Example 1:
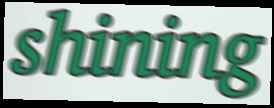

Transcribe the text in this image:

shining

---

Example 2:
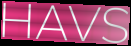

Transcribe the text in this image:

HAVS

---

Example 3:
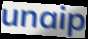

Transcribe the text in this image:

unaip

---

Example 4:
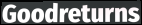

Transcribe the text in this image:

Goodreturns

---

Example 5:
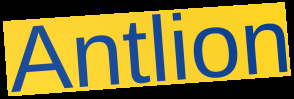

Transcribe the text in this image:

Antlion